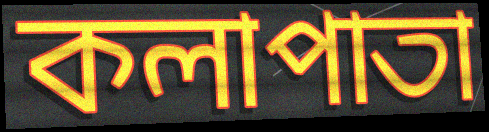
কলাপাতা